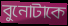
বুনোটাকে